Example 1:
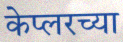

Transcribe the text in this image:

केप्लरच्या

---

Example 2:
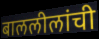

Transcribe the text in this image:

बाललीलांची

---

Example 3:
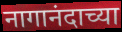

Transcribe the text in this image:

नागानंदाच्या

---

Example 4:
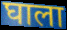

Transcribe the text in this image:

घाला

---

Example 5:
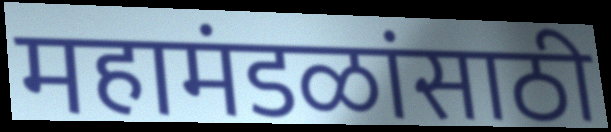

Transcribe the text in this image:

महामंडळांसाठी